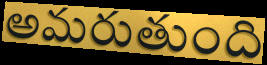
అమరుతుంది